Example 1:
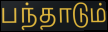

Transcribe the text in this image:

பந்தாடும்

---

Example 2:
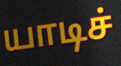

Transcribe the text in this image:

யாடிச்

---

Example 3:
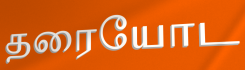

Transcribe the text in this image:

தரையோட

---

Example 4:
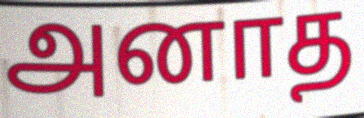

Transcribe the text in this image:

அனாத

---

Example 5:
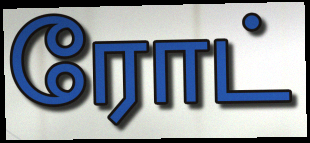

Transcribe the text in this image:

ரோட்